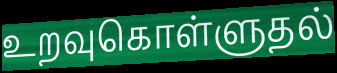
உறவுகொள்ளுதல்